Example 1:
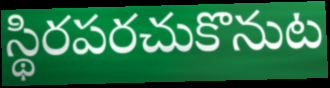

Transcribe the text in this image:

స్థిరపరచుకొనుట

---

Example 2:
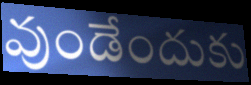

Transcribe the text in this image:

వుండేందుకు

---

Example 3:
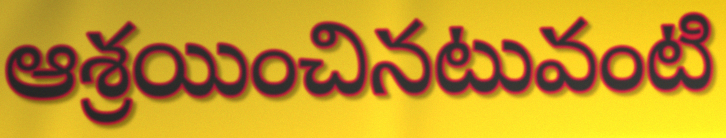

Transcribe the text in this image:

ఆశ్రయించినటువంటి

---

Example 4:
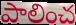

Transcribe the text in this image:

పాలించ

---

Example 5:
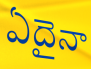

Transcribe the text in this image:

ఏదైనా